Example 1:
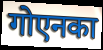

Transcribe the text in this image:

गोएनका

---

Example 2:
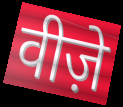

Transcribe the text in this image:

वीज़े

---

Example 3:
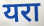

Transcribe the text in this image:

यरा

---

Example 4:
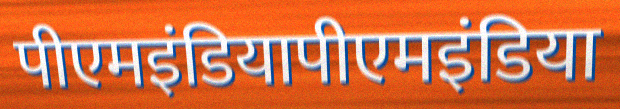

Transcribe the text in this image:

पीएमइंडियापीएमइंडिया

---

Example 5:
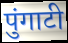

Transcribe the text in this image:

पुंगाटी